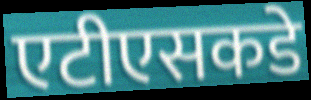
एटीएसकडे